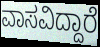
ವಾಸವಿದ್ದಾರೆ